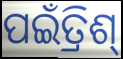
ପଇଁତ୍ରିଶ୍